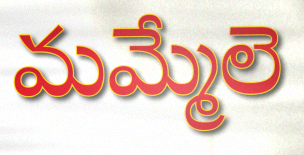
మమ్మేలె